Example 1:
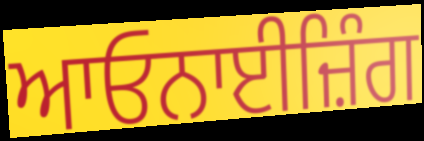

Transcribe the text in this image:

ਆਓਨਾਈਜ਼ਿੰਗ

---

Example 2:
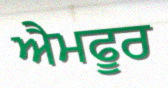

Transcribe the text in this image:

ਐਮਫੂਰ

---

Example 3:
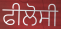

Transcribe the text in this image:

ਫੀਲੋਸੀ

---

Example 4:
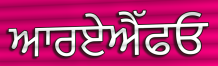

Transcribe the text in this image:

ਆਰਏਐੱਫਓ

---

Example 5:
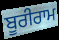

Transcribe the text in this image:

ਬੂਰੀਰਾਮ